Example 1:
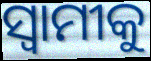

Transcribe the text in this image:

ସ୍ୱାମୀକୁ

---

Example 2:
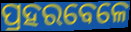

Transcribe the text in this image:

ପ୍ରହରବେଳେ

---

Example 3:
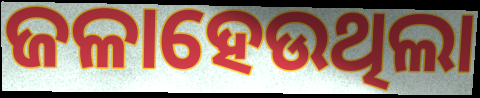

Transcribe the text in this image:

ଜଳାହେଉଥିଲା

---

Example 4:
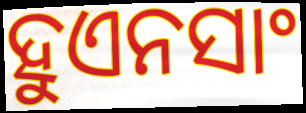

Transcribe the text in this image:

ହୁଏନସାଂ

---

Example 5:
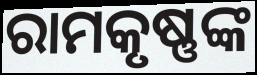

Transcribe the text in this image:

ରାମକୃଷ୍ଣଙ୍କ